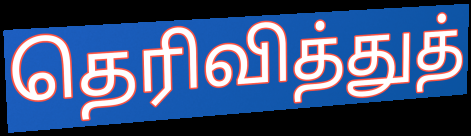
தெரிவித்துத்